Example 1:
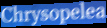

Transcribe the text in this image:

Chrysopelea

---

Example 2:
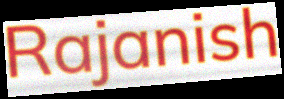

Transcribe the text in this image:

Rajanish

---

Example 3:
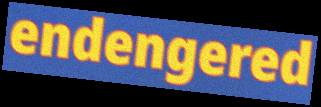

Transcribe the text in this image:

endengered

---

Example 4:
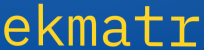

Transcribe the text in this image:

ekmatr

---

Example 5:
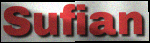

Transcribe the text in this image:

Sufian